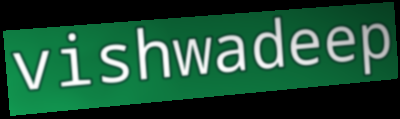
vishwadeep